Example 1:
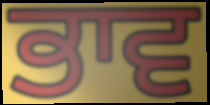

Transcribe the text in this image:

ਭਾਵ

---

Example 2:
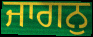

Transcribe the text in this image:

ਜਾਗਨੁ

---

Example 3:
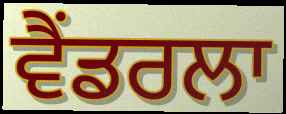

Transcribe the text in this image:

ਵੈਂਡਰਲਾ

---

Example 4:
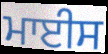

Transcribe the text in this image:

ਮਾਈਸ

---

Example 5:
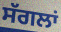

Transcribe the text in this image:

ਸੱਗਲਾਂ